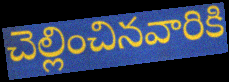
చెల్లించినవారికి